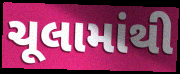
ચૂલામાંથી